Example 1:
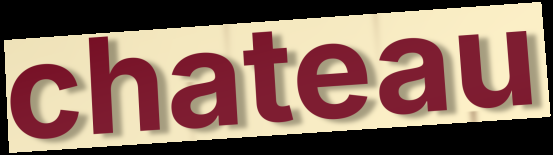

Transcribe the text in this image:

chateau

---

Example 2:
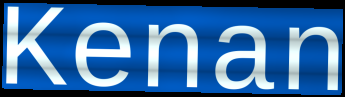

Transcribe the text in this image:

Kenan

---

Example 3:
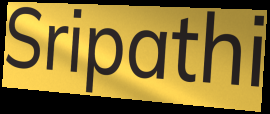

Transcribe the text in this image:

Sripathi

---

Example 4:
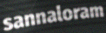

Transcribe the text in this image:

sannaloram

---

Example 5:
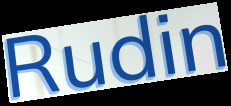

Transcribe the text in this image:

Rudin